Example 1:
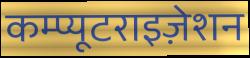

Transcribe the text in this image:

कम्प्यूटराइज़ेशन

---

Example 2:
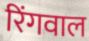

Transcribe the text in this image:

रिंगवाल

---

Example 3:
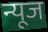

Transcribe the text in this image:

न्‍यूज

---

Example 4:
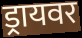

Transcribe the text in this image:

ड्रायवर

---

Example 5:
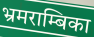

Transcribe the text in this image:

भ्रमराम्बिका